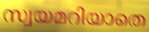
സ്വയമറിയാതെ